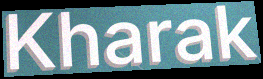
Kharak